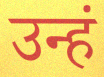
उन्हं